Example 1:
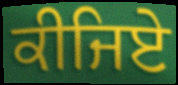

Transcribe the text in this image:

ਕੀਜਿਏ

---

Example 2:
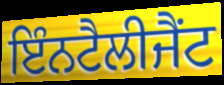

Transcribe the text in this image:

ਇੰਨਟੈਲੀਜੈਂਟ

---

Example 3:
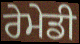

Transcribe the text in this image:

ਰੇਮੇਡੀ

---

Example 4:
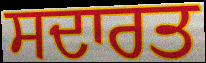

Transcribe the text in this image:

ਸਦਾਰਤ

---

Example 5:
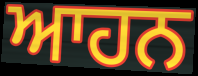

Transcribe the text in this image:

ਆਹਨ